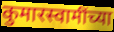
कुमारस्वामींच्या